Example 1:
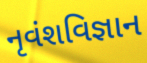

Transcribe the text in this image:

નૃવંશવિજ્ઞાન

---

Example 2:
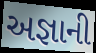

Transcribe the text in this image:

અજ્ઞાની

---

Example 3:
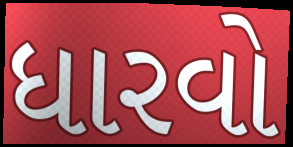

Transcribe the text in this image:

ધારવો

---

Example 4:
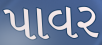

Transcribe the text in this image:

પાવર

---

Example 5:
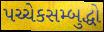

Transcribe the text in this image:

પચ્ચેકસમ્બુદ્ધો